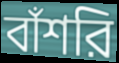
বাঁশরি